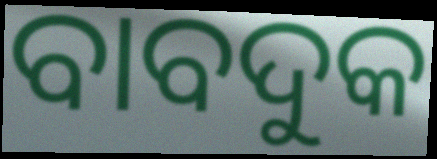
ବାବଦୁକ